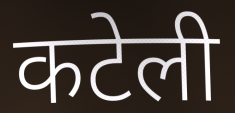
कटेली